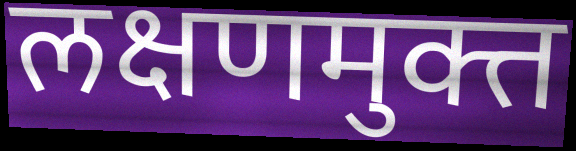
लक्षणमुक्त